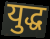
युद्ध